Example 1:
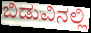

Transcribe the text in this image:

ಬಿಡುವಿನಲ್ಲಿ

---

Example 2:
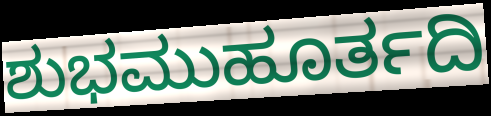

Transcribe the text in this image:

ಶುಭಮುಹೂರ್ತದಿ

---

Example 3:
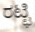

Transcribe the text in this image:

ರಟ್ಟಿ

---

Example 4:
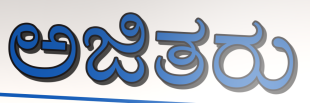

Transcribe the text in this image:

ಅಜಿತರು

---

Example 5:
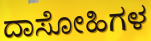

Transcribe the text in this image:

ದಾಸೋಹಿಗಳ